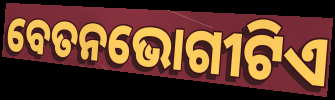
ବେତନଭୋଗୀଟିଏ